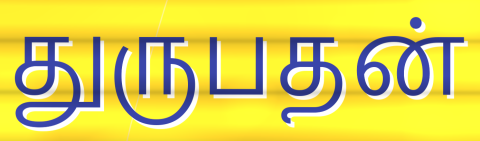
துருபதன்